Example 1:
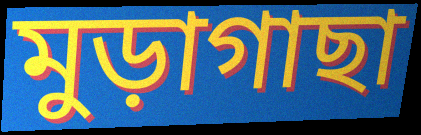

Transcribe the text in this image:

মুড়াগাছা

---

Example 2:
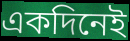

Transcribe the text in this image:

একদিনেই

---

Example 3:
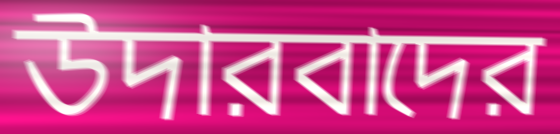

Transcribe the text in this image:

উদারবাদের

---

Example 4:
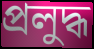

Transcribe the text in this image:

প্রলুদ্ধ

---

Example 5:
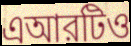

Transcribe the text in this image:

এআরটিও